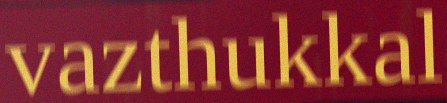
vazthukkal